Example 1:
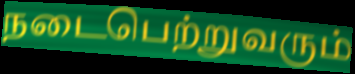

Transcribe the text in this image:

நடைபெற்றுவரும்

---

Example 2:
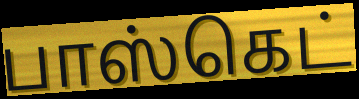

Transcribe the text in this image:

பாஸ்கெட்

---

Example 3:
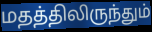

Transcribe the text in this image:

மதத்திலிருந்தும்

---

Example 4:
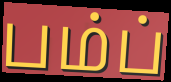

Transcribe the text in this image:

பம்ப்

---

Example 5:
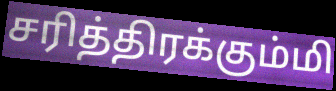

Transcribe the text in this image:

சரித்திரக்கும்மி